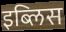
इब्लिस